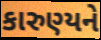
કારુણ્યને